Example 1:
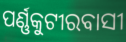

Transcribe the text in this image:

ପର୍ଣ୍ଣକୁଟୀରବାସୀ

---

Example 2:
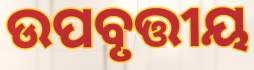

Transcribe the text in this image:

ଉପବୃତ୍ତୀୟ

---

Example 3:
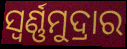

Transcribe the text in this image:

ସ୍ୱର୍ଣ୍ଣମୁଦ୍ରାର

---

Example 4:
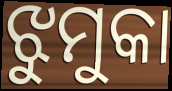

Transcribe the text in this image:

ଝୁମୁକା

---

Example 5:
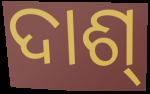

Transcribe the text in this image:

ଦାଶ୍